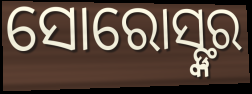
ସୋରୋସ୍ଙ୍କର